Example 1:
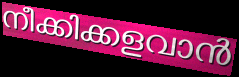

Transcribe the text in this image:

നീക്കിക്കളവാൻ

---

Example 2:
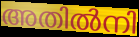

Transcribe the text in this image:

അതിൽനി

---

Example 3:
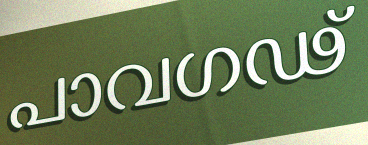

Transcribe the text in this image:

പാവഗഢ്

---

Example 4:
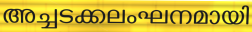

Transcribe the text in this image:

അച്ചടക്കലംഘനമായി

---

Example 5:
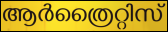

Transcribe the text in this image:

ആർത്രൈറ്റിസ്